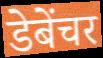
डेबेंचर